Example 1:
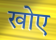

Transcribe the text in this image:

खोए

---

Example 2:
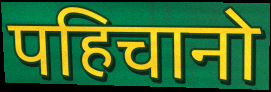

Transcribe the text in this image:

पहिचानो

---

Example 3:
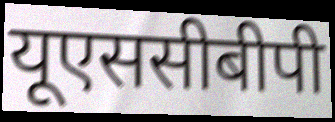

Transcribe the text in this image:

यूएससीबीपी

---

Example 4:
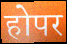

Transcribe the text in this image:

होपर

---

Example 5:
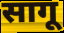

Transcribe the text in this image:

सागू